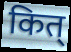
कित्